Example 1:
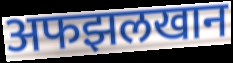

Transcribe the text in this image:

अफझलखान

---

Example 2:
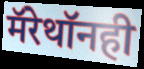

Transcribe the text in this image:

मॅरेथॉनही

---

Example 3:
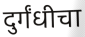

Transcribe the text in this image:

दुर्गंधीचा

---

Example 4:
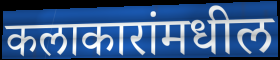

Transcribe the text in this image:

कलाकारांमधील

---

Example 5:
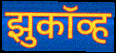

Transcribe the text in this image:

झुकॉव्ह